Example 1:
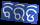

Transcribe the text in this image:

ବିରିଡି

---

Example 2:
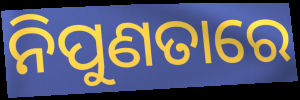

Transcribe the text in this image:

ନିପୁଣତାରେ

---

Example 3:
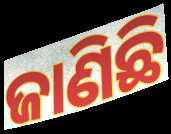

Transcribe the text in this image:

ଜାଣିଛି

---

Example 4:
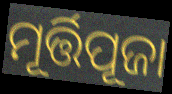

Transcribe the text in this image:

ମୂର୍ତ୍ତିପୂଜା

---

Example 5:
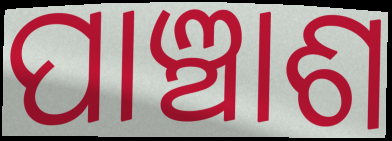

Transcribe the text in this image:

ପାଞ୍ଚାଶ